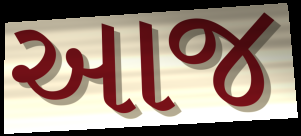
આજ